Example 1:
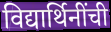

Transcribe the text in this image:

विद्यार्थिनींची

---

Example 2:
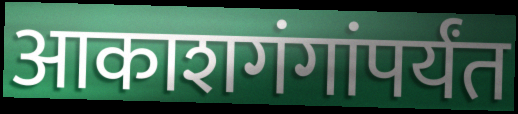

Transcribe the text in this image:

आकाशगंगांपर्यंत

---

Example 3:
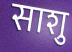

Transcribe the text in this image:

साश्रु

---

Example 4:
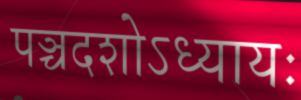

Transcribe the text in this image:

पञ्चदशोऽध्यायः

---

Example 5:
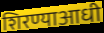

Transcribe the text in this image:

शिरण्याआधी